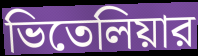
ভিতেলিয়ার